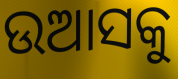
ଉଆସକୁ